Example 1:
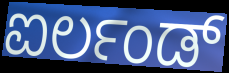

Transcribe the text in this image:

ಐರ್ಲಂಡ್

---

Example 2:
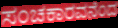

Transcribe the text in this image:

ಸಂಚಕಾರವನೆಂದ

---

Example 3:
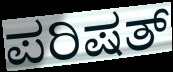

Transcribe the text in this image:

ಪರಿಷತ್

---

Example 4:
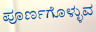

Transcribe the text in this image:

ಪೂರ್ಣಗೊಳ್ಳುವ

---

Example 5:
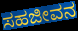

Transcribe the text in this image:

ಸಹಜೀವನ